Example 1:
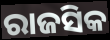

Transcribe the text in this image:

ରାଜସିକ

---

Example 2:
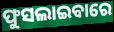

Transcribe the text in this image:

ଫୁସଲାଇବାରେ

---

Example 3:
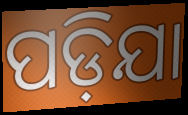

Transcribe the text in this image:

ପଡ଼ିଯା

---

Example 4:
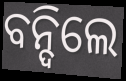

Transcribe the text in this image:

ବନ୍ଦିଲେ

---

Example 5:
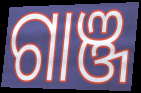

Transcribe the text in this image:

ଗାଞ୍ଜ